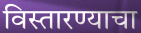
विस्तारण्याचा